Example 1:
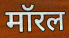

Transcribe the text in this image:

मॉरल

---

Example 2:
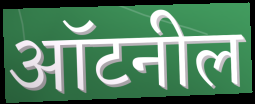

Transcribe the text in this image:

ऑटनील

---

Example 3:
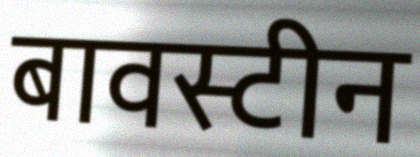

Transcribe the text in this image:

बावस्टीन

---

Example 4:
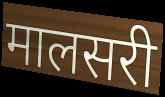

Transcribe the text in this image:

मालसरी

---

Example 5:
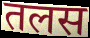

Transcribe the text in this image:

तलस